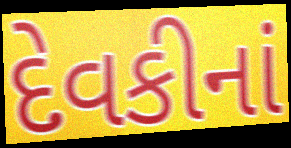
દેવકીનાં